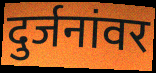
दुर्जनांवर